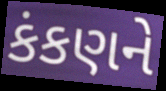
કંકણને